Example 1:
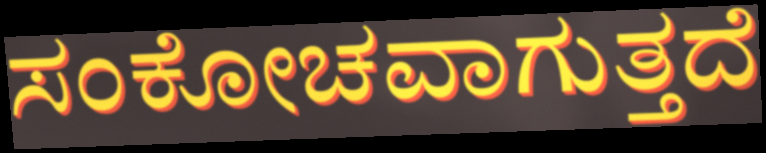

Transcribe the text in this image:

ಸಂಕೋಚವಾಗುತ್ತದೆ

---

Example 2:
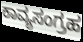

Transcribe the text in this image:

ಕಾವ್ಯಸಂಗ್ರಹ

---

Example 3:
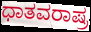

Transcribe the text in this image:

ಧಾತವರಾಷ್ರ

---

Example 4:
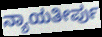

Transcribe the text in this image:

ನ್ಯಾಯತೀರ್ಪು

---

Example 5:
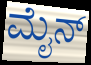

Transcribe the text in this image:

ಮೈನ್